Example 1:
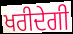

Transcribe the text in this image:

ਖਰੀਦੇਗੀ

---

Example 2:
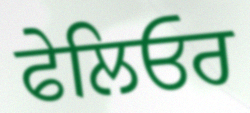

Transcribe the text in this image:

ਫੇਲਿਓਰ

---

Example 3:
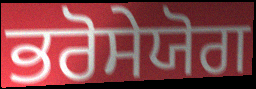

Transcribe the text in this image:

ਭਰੋਸੇਯੋਗ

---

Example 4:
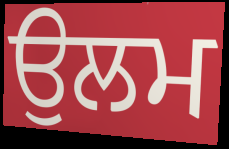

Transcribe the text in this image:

ਉਲਮ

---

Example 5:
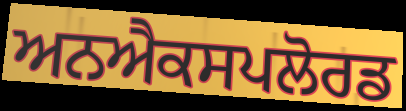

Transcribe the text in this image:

ਅਨਐਕਸਪਲੋਰਡ